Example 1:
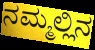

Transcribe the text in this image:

ನಮ್ಮಲ್ಲಿನ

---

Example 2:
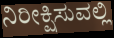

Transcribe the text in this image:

ನಿರೀಕ್ಷಿಸುವಲ್ಲಿ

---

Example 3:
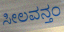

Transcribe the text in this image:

ಸೀಲವನ್ತಂ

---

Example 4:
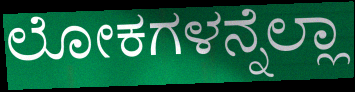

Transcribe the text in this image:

ಲೋಕಗಳನ್ನೆಲ್ಲಾ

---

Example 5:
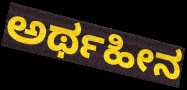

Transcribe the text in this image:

ಅರ್ಥಹೀನ